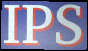
IPS